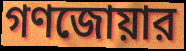
গণজোয়ার